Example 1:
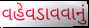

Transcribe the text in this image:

વહેવડાવવાનું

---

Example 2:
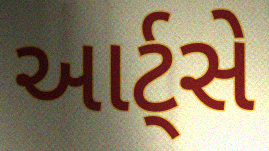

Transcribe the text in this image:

આર્ટ્સે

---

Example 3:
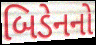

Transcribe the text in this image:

બિડેનનો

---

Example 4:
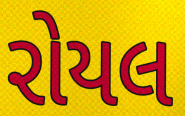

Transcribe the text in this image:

રોયલ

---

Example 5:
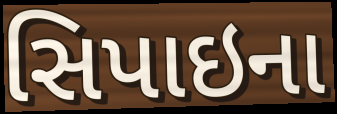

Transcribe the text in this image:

સિપાઇના